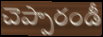
చెప్పారండీ